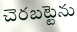
చెరబట్టెను